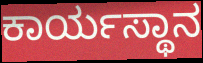
ಕಾರ್ಯಸ್ಥಾನ